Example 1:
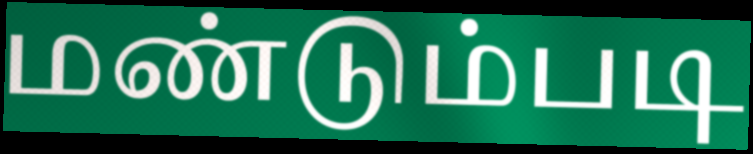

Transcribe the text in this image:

மண்டும்படி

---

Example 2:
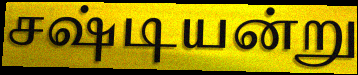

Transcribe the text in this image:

சஷ்டியன்று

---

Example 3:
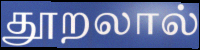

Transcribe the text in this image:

தூறலால்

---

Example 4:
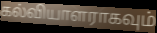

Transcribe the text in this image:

கல்வியாளராகவும்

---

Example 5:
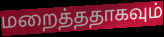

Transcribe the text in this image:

மறைத்ததாகவும்